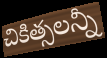
చికిత్సలన్నీ